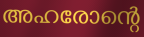
അഹരോന്റെ